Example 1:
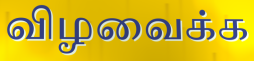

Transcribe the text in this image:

விழவைக்க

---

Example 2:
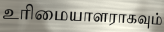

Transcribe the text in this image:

உரிமையாளராகவும்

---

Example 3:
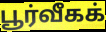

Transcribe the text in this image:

பூர்வீகக்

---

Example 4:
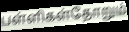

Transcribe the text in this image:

பள்ளிகள்தோறும்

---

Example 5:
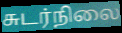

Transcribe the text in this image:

சுடர்நிலை